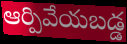
ఆర్పివేయబడ్డ